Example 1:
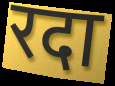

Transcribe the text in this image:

रदा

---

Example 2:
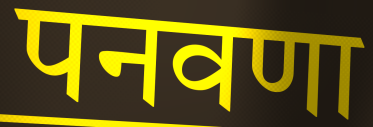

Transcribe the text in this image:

पनवणा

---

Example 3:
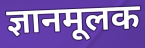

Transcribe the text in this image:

ज्ञानमूलक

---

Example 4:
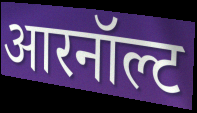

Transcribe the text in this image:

आरनॉल्ट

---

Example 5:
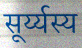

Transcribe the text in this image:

सूर्य्यस्य